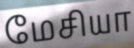
மேசியா